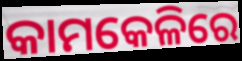
କାମକେଳିରେ